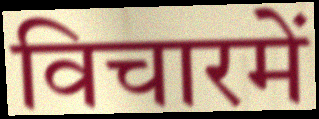
विचारमें